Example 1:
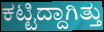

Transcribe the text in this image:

ಕಟ್ಟಿದ್ದಾಗಿತ್ತು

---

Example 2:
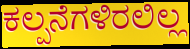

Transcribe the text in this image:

ಕಲ್ಪನೆಗಳಿರಲಿಲ್ಲ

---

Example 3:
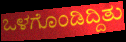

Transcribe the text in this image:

ಒಳಗೊಂಡಿದ್ದಿತು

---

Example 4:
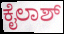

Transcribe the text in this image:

ಕೈಲಾಶ್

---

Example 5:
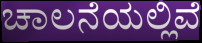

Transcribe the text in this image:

ಚಾಲನೆಯಲ್ಲಿವೆ